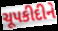
ચૂપકીદીને